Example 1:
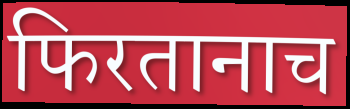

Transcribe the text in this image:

फिरतानाच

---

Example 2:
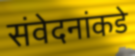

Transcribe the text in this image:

संवेदनांकडे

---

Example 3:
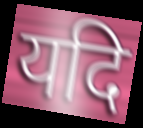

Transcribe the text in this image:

यदि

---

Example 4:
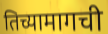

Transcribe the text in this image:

तिच्यामागची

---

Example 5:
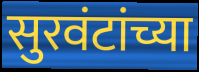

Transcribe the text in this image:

सुरवंटांच्या